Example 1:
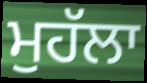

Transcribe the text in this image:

ਮੁਹੱਲਾ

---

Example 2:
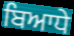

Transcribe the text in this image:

ਬਿਆਧੇ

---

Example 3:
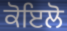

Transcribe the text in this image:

ਕੋਇਲੋ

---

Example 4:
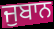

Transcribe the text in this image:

ਜੁਬਾਨ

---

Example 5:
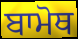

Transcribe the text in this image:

ਬਾਮੋਥ